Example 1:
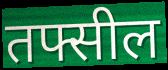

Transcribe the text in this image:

तफ्सील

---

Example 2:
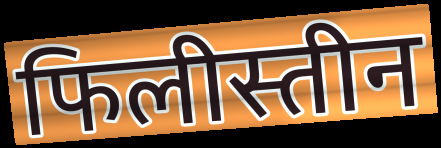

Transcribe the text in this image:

फिलीस्तीन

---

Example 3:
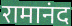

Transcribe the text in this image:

रामानंद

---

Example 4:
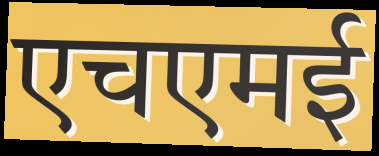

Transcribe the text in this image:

एचएमई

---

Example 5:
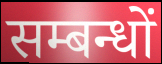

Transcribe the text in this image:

सम्बन्धों